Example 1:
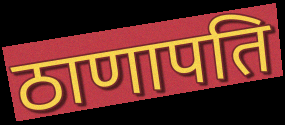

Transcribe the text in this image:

ठाणापति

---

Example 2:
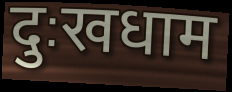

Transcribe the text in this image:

दुःखधाम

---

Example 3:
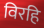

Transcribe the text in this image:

विरहि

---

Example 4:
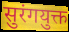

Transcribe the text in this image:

सुरंगयुक्त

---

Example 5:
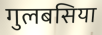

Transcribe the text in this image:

गुलबसिया